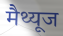
मैथ्यूज